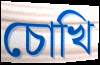
চোখি